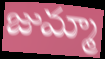
జుమ్మా